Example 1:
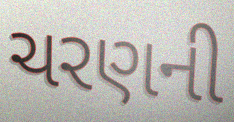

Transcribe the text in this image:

ચરણની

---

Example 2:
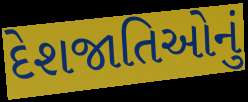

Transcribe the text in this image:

દેશજાતિઓનું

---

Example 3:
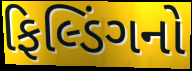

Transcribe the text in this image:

ફિલ્ડિંગનો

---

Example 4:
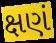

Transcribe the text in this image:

ક્ષણં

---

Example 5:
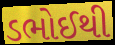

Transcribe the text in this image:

ડભોઈથી